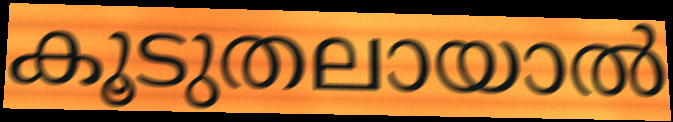
കൂടുതലായാൽ